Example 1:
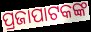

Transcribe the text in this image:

ପ୍ରଜାପାଟକଙ୍କ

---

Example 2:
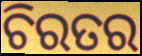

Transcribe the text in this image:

ଚିରତର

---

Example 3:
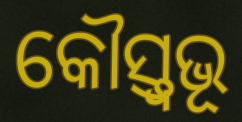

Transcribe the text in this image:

କୌସ୍ତ୍ୱଭୂ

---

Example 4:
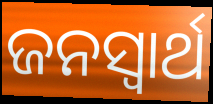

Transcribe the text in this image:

ଜନସ୍ଵାର୍ଥ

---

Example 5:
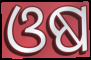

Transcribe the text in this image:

ଓଷ